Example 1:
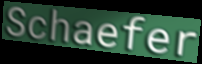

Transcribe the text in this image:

Schaefer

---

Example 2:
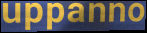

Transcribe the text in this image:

uppanno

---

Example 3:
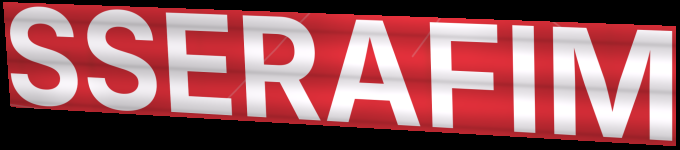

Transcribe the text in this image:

SSERAFIM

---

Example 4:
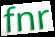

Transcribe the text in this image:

fnr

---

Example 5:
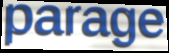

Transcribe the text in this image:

parage